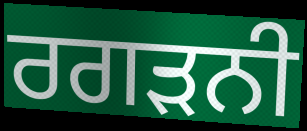
ਰਗੜਨੀ